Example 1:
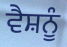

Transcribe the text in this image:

ਵੈਸ਼ਨੂੰ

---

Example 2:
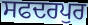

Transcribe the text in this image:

ਸਫਦਰਪੁਰ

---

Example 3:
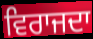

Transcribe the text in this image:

ਵਿਰਾਜਦਾ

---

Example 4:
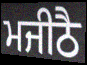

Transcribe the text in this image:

ਮਜੀਠੈ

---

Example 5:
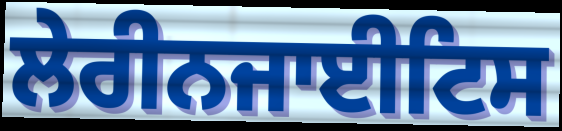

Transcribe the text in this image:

ਲੇਰੀਨਜਾਈਟਿਸ